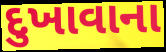
દુખાવાના